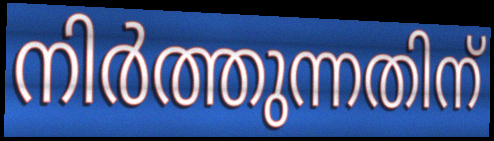
നിർത്തുന്നതിന്